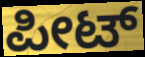
ಪೀಟ್